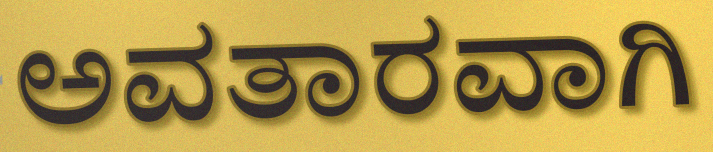
ಅವತಾರವಾಗಿ